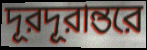
দূরদূরান্তরে